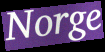
Norge